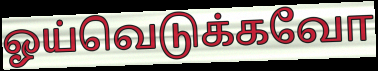
ஓய்வெடுக்கவோ